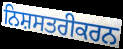
ਨਿਸ਼ਸਤਰੀਕਰਨ